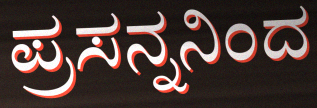
ಪ್ರಸನ್ನನಿಂದ